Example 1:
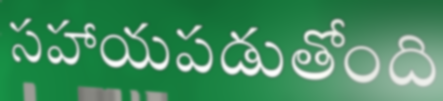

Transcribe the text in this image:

సహాయపడుతోంది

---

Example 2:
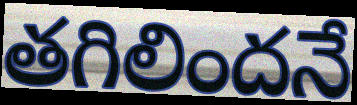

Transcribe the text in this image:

తగిలిందనే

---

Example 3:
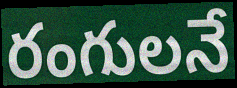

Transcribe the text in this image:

రంగులనే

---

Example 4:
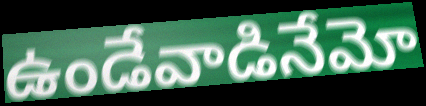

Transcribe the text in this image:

ఉండేవాడినేమో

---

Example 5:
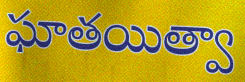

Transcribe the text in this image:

ఘాతయిత్వా